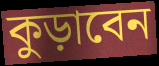
কুড়াবেন